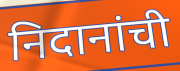
निदानांची